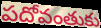
పదోవంతుకు